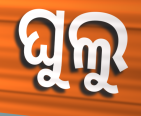
ଘୁଲୁ